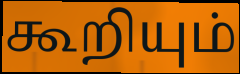
கூறியும்